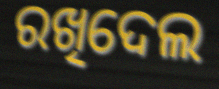
ରଖିଦେଲ